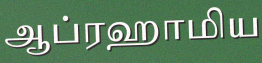
ஆப்ரஹாமிய